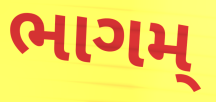
ભાગમ્